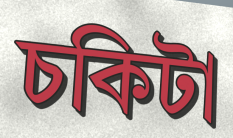
চকিটা